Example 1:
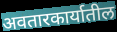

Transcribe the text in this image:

अवतारकार्यातील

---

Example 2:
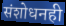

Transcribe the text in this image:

संशोधनही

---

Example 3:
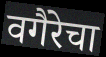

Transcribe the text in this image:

वगैरेचा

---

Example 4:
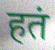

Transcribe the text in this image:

हतं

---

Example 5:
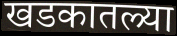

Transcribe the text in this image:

खडकातल्या